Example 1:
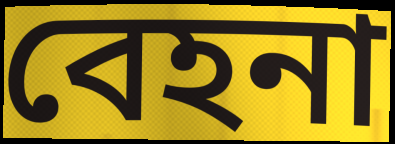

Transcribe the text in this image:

বেহনা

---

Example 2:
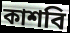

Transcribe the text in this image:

কাশবি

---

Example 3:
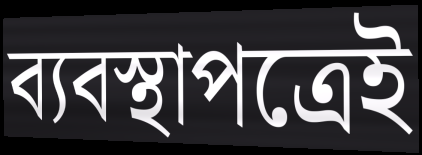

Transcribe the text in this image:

ব্যবস্থাপত্রেই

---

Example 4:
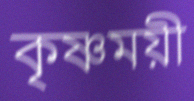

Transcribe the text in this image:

কৃষ্ণময়ী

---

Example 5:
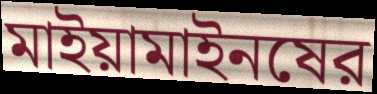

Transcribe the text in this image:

মাইয়ামাইনষের